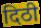
दिठी